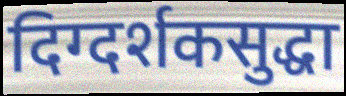
दिग्दर्शकसुद्धा